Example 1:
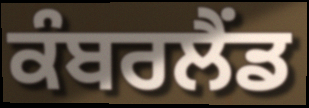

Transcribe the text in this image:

ਕੰਬਰਲੈਂਡ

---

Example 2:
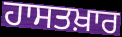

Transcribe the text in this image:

ਹਾਸਤਖ਼ਾਰ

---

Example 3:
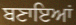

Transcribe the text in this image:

ਬਣਾਇਆਂ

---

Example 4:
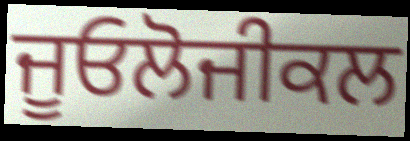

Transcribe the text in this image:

ਜੂਓਲੋਜੀਕਲ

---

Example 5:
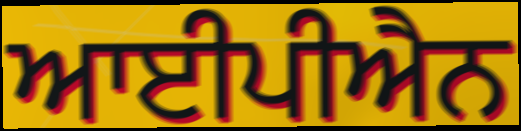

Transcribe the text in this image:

ਆਈਪੀਐਨ